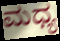
ಮಧ್ಯ